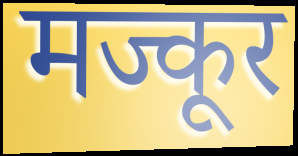
मज्कूर